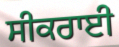
ਸੀਕਰਾਈ